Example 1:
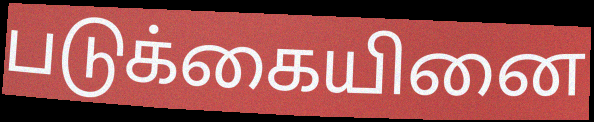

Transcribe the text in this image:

படுக்கையினை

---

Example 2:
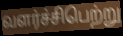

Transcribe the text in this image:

வளர்ச்சிபெற்று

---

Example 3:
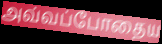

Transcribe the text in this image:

அவ்வப்போதைய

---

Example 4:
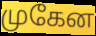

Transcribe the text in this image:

முகேன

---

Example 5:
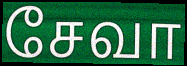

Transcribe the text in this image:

சேவா